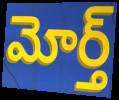
మోర్త్